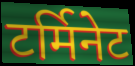
टर्मिनेट